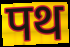
पथ